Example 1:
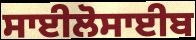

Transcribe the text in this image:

ਸਾਈਲੋਸਾਈਬ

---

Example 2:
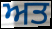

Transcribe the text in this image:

ਅਤ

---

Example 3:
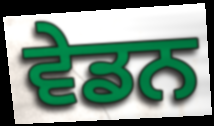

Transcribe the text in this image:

ਵੇਡਨ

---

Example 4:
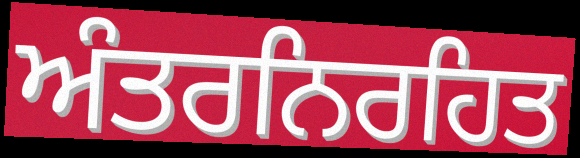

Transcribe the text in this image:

ਅੰਤਰਨਿਰਹਿਤ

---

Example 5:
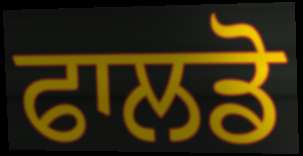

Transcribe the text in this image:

ਫਾਲਡੋ